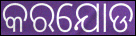
କରଯୋଡ